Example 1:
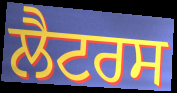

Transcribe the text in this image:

ਲੈਟਰਸ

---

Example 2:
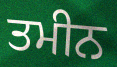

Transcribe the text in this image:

ਤਮੀਨ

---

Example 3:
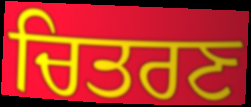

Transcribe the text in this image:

ਚਿਤਰਣ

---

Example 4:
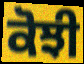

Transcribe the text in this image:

ਕੋਝੀ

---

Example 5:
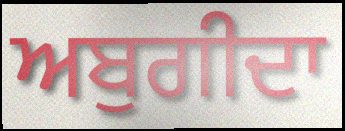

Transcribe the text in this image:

ਅਬੁਗੀਦਾ